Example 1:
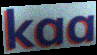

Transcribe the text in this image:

kaa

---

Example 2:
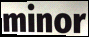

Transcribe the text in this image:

minor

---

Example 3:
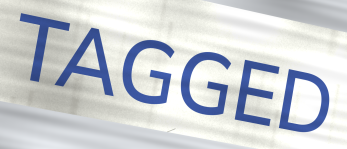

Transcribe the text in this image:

TAGGED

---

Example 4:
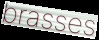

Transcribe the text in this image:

brasses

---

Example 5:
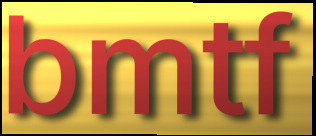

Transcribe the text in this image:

bmtf